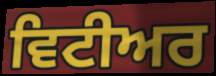
ਵਿਟੀਅਰ